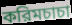
করিমচাচা